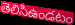
తెలిసిఉండటం